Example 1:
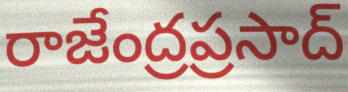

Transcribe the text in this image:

రాజేంద్రప్రసాద్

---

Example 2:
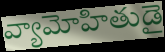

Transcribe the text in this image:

వ్యామోహితుడై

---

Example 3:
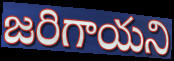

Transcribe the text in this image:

జరిగాయని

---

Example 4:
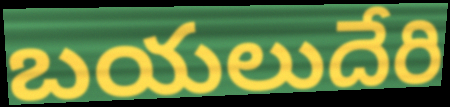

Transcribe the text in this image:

బయలుదేరి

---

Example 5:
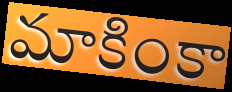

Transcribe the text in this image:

మాకింకా